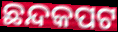
ଛନ୍ଦକପଟ